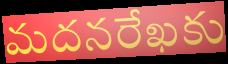
మదనరేఖకు